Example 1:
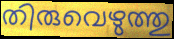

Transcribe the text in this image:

തിരുവെഴുത്തു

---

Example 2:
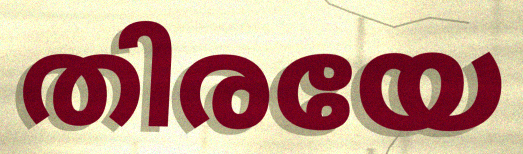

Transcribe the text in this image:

തിരയേ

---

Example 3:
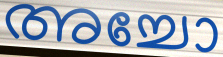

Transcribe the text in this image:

അച്ചോ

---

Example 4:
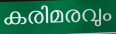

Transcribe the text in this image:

കരിമരവും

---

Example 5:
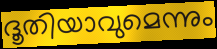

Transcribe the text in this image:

ദൂതിയാവുമെന്നും